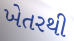
ખેતરથી